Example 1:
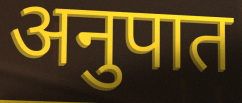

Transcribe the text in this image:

अनुपात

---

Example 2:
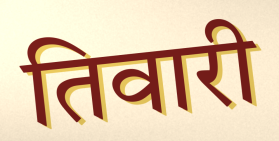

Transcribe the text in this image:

तिवारी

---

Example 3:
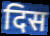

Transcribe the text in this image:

दिस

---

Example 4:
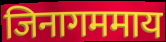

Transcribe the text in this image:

जिनागममाय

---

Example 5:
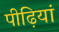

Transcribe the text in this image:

पीढ़ियां